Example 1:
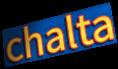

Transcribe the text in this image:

chalta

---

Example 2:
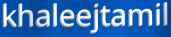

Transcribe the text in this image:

khaleejtamil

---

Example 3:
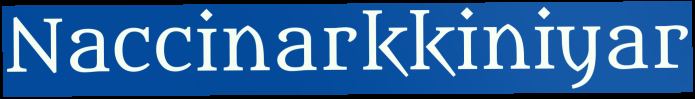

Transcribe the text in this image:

Naccinarkkiniyar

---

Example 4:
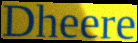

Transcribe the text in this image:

Dheere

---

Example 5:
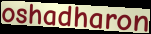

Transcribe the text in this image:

oshadharon